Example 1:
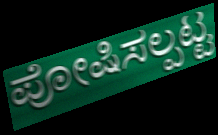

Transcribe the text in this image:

ಪೋಷಿಸಲ್ಪಟ್ಟ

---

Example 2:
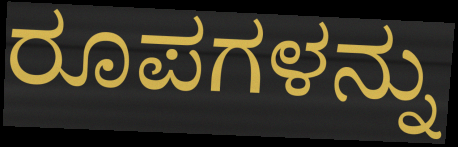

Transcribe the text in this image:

ರೂಪಗಳನ್ನು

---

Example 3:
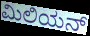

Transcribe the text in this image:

ಮಿಲಿಯನ್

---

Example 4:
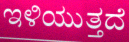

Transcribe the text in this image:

ಇಳಿಯುತ್ತದೆ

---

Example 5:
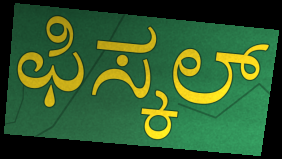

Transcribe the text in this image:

ಫಿಸ್ಕಲ್